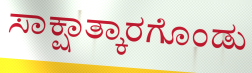
ಸಾಕ್ಷಾತ್ಕಾರಗೊಂಡು